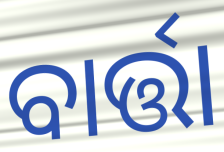
ବାର୍ତ୍ତା